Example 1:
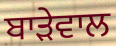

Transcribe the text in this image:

ਬਾੜੇਵਾਲ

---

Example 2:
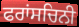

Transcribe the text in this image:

ਫਰਾਂਸਚਿਨੀ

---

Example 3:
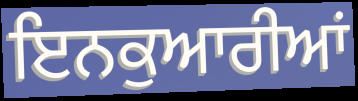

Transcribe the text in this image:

ਇਨਕੁਆਰੀਆਂ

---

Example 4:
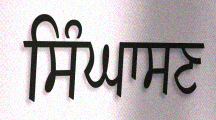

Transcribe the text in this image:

ਸਿੰਘਾਸਣ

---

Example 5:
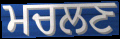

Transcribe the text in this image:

ਮਚਲਣ